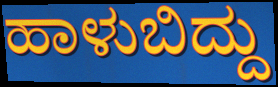
ಹಾಳುಬಿದ್ದು